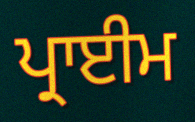
ਪ੍ਰਾਈਮ